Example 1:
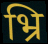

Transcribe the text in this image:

भ्रि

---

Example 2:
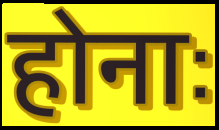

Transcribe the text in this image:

होनाः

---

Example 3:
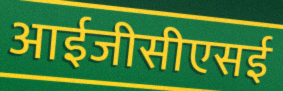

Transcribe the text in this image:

आईजीसीएसई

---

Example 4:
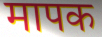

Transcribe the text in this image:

मापक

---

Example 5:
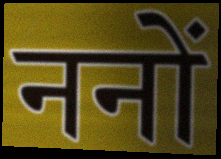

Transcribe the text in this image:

ननों